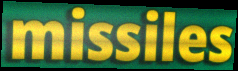
missiles